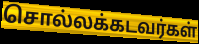
சொல்லக்கடவர்கள்